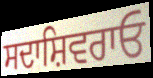
ਸਦਾਸ਼ਿਵਰਾਓ